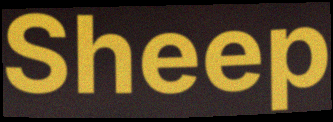
Sheep